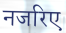
नजरिए